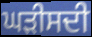
ਘੜੀਸਦੀ